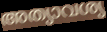
അത്യാവശ്യ